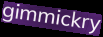
gimmickry